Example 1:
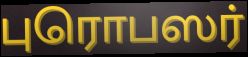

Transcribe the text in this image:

புரொபஸர்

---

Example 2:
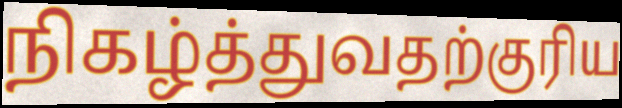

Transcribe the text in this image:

நிகழ்த்துவதற்குரிய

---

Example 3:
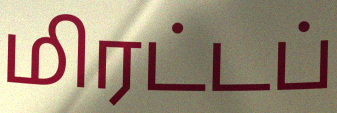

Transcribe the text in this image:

மிரட்டப்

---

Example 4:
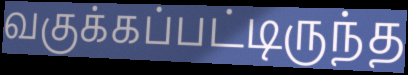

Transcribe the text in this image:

வகுக்கப்பட்டிருந்த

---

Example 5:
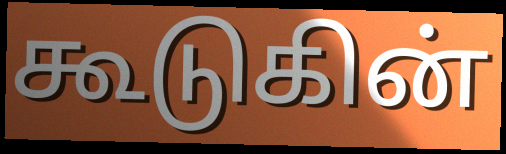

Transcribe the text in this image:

கூடுகின்